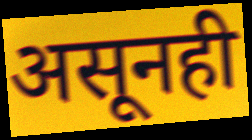
असूनही